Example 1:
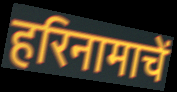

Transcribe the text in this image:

हरिनामाचें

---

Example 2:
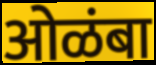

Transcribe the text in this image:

ओळंबा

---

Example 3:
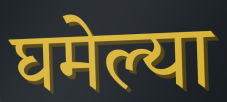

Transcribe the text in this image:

घमेल्या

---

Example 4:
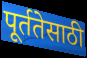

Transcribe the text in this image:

पूर्ततेसाठी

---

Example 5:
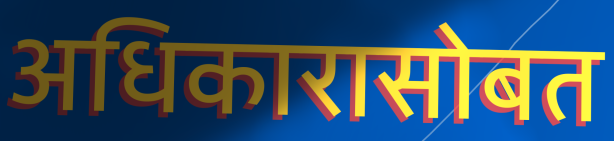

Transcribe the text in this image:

अधिकारासोबत